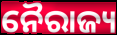
ନୈରାଜ୍ୟ